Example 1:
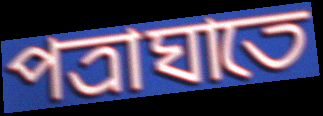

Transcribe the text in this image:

পত্রাঘাতে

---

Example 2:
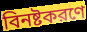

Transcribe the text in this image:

বিনষ্টকরণে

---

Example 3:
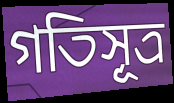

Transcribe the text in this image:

গতিসূত্র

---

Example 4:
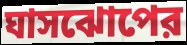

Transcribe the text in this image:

ঘাসঝোপের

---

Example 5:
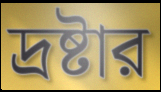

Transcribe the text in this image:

দ্রষ্টার